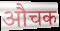
औचक